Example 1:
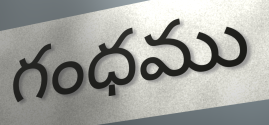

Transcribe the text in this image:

గంధము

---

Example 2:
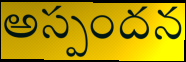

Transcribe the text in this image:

అస్పందన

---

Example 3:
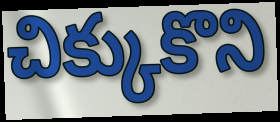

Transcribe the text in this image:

చిక్కుకొని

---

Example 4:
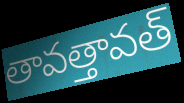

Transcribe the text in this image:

తావత్తావత్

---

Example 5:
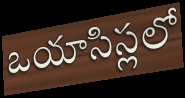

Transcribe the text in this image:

ఒయాసిస్లలో